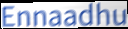
Ennaadhu